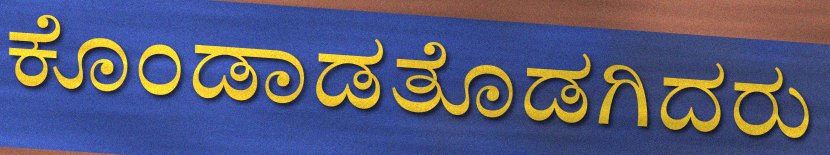
ಕೊಂಡಾಡತೊಡಗಿದರು